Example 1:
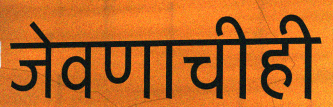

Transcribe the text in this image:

जेवणाचीही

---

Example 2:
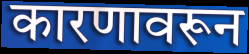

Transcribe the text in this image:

कारणावरून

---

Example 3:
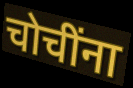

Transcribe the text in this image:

चोचींना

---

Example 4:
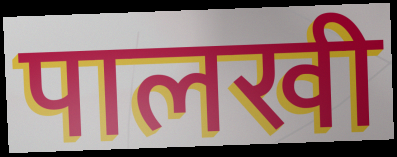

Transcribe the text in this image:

पालखी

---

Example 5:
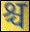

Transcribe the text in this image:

श्च